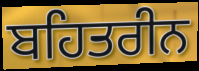
ਬਹਿਤਰੀਨ